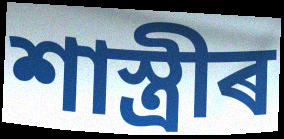
শাস্ত্ৰীৰ